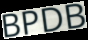
BPDB